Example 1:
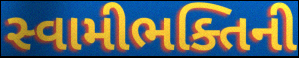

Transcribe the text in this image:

સ્વામીભક્તિની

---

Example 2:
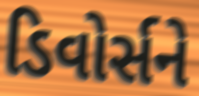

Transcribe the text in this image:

ડિવોર્સને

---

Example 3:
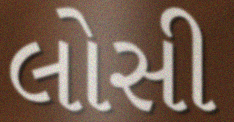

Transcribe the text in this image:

લોસી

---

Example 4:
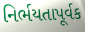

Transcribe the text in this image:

નિર્ભયતાપૂર્વક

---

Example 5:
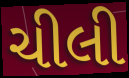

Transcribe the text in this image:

ચીલી